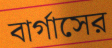
বার্গাসের